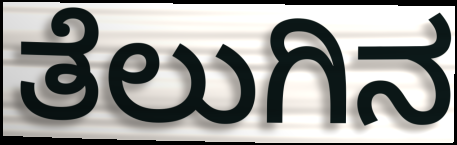
ತೆಲುಗಿನ